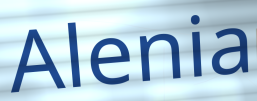
Alenia